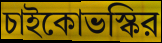
চাইকোভস্কির